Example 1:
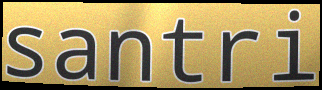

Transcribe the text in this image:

santri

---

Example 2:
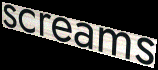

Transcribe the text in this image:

screams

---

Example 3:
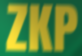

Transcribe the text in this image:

ZKP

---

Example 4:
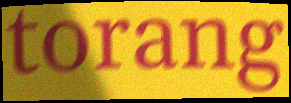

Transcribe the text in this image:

torang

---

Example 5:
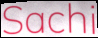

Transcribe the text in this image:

Sachi